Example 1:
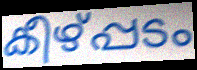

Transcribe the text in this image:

കീഴ്പ്പടം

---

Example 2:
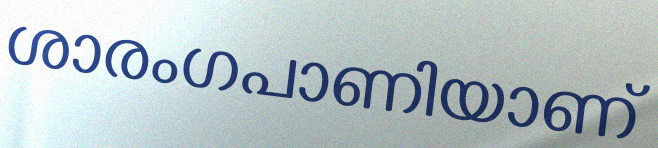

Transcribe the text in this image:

ശാരംഗപാണിയാണ്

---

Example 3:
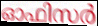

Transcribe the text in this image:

ഓഫിസർ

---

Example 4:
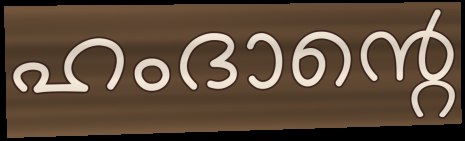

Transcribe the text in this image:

ഹംദാന്റെ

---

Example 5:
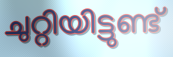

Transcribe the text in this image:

ചുറ്റിയിട്ടുണ്ട്